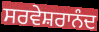
ਸਰਵੇਸ਼ਰਾਨੰਦ